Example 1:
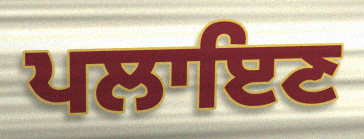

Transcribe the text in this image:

ਪਲਾਇਣ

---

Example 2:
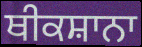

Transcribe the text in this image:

ਥੀਕਸ਼ਾਨਾ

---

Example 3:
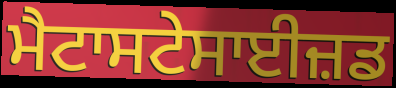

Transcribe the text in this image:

ਮੈਟਾਸਟੇਸਾਈਜ਼ਡ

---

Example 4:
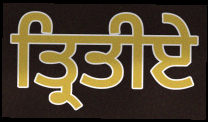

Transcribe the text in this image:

ਤ੍ਰਿਤੀਏ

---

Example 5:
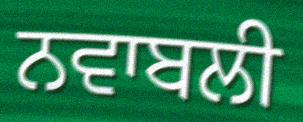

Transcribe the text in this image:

ਨਵਾਬਲੀ